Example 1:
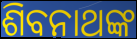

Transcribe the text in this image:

ଶିବନାଥଙ୍କ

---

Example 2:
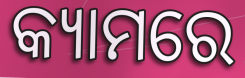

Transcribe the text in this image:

କ୍ୟାମରେ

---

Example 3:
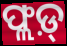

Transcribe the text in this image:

ଫ୍ଲଡ଼୍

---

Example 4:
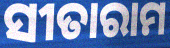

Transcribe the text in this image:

ସୀତାରାମ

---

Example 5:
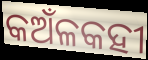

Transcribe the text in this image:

କଅଁଳକହୀ